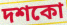
দশকো